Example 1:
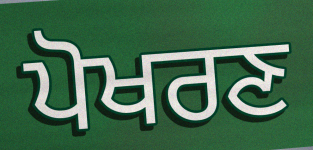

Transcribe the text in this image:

ਪੋਖਰਣ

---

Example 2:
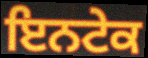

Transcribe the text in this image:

ਇਨਟੇਕ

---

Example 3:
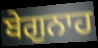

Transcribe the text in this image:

ਬੇਗੁਨਾਹ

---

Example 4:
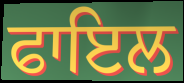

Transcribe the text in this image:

ਫਾਇਲ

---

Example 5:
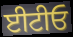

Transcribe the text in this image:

ਈਟੀਓ